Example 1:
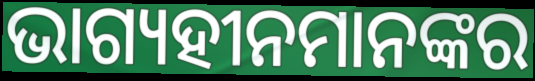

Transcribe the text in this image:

ଭାଗ୍ୟହୀନମାନଙ୍କର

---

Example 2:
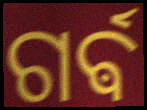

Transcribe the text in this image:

ଗର୍ଵ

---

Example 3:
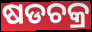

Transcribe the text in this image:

ଷଡଚକ୍ର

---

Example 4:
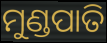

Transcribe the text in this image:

ମୁଣ୍ଡପାତି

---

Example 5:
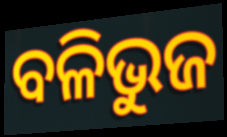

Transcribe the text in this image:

ବଳିଭୁଜ